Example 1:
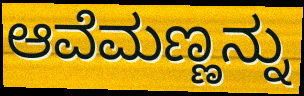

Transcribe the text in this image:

ಆವೆಮಣ್ಣನ್ನು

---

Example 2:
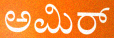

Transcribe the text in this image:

ಅಮಿರ್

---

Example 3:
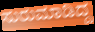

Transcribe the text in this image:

ಸುರುಮಾಡಿದ್ದ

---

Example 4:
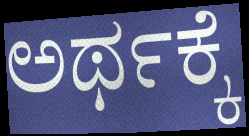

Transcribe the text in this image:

ಅರ್ಥಕ್ಕೆ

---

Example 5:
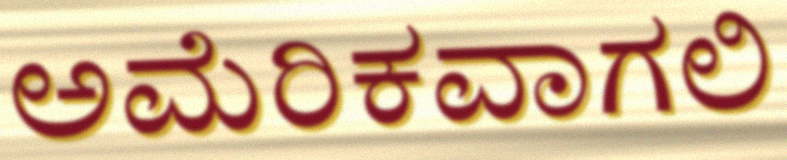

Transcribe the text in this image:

ಅಮೆರಿಕವಾಗಲಿ